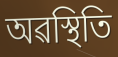
অৱস্থিতি